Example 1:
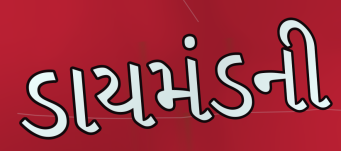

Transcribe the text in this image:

ડાયમંડની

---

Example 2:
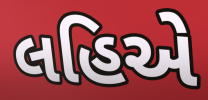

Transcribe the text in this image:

લહિએ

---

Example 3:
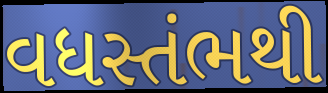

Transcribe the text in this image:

વધસ્તંભથી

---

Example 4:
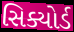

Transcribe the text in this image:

સિક્યોર્ડ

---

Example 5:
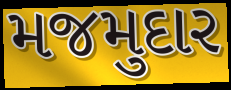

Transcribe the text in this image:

મજમુદાર